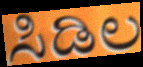
ಸಿಡಿಲ